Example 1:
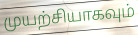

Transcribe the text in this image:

முயற்சியாகவும்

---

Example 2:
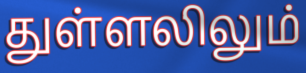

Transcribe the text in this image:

துள்ளலிலும்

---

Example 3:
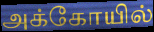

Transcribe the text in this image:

அக்கோயில்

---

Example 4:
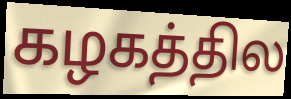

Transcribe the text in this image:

கழகத்தில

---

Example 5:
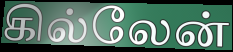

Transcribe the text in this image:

கில்லேன்